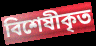
বিশেষীকৃত